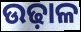
ଉଢ଼ାଳ